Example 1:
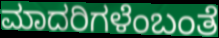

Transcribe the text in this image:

ಮಾದರಿಗಳೆಂಬಂತೆ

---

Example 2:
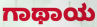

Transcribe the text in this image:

ಗಾಥಾಯ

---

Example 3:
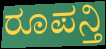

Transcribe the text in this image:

ರೂಪನ್ತಿ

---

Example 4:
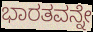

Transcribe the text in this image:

ಭಾರತವನ್ನೇ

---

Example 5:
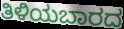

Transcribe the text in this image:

ತಿಳಿಯಬಾರದ